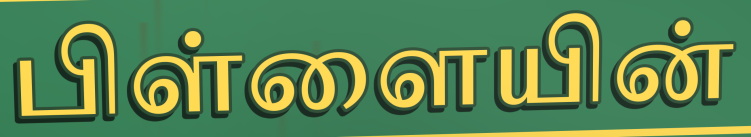
பிள்ளையின்